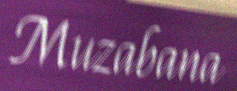
Muzabana